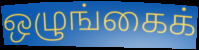
ஒழுங்கைக்